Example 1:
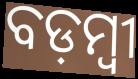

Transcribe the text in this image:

ବଡ଼ମ୍ବୀ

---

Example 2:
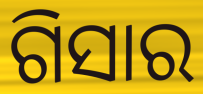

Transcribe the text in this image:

ଗିସାର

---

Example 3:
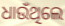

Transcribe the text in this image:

ଧାଉଁଥିଲେ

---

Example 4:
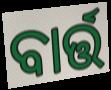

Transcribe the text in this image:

ବାର୍ତ୍ତ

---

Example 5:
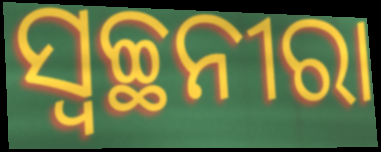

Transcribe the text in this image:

ସ୍ବଚ୍ଛନୀରା